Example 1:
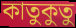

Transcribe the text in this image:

কাতুকুতু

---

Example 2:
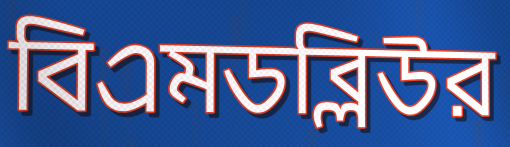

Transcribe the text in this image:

বিএমডব্লিউর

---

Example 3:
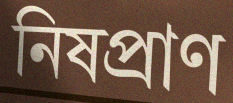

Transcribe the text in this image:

নিষপ্রাণ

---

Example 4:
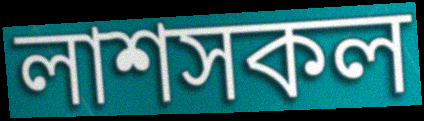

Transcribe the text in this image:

লাশসকল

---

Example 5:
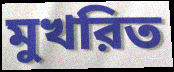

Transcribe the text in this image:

মুখরিত